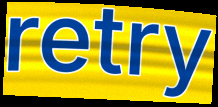
retry